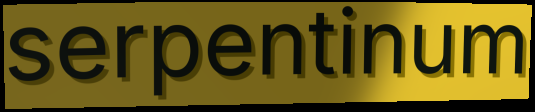
serpentinum